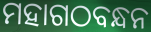
ମହାଗଠବନ୍ଧନ